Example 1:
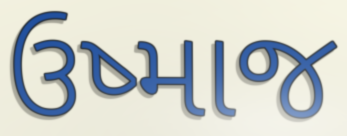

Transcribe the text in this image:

ઉષ્માજ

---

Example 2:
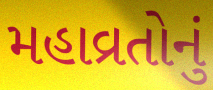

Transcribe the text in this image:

મહાવ્રતોનું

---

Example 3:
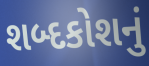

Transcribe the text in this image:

શબ્દકોશનું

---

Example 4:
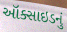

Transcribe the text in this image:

ઑક્સાઇડનું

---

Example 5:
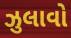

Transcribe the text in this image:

ઝુલાવો